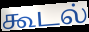
கூடல்